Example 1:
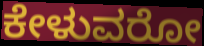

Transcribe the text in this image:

ಕೇಳುವರೋ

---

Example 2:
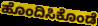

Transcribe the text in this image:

ಹೊಂದಿಸಿಕೊಂಡೆ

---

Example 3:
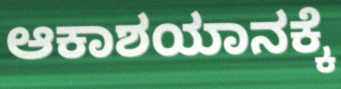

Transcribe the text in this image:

ಆಕಾಶಯಾನಕ್ಕೆ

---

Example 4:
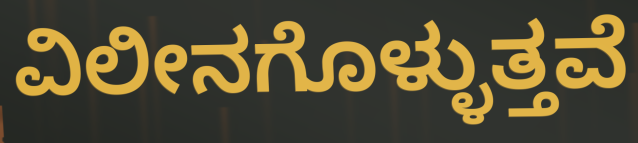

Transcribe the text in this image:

ವಿಲೀನಗೊಳ್ಳುತ್ತವೆ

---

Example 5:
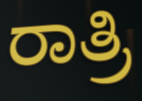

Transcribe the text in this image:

ರಾತ್ರಿ